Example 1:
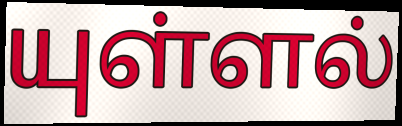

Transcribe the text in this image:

யுள்ளல்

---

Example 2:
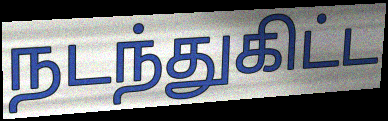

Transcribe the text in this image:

நடந்துகிட்ட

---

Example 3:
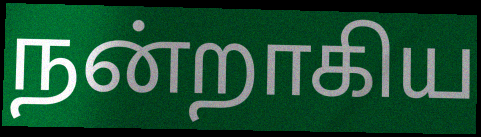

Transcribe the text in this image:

நன்றாகிய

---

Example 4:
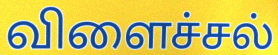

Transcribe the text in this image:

விளைச்சல்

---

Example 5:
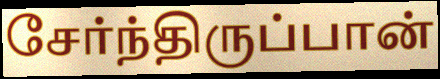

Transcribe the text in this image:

சேர்ந்திருப்பான்